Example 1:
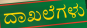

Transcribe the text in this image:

ದಾಖಲೆಗಳು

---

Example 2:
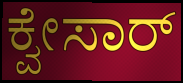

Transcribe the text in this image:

ಕ್ವೇಸಾರ್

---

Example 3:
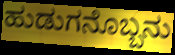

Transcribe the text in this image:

ಹುಡುಗನೊಬ್ಬನು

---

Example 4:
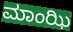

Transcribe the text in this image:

ಮಾಂಝಿ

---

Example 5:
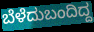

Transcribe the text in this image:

ಬೆಳೆದುಬಂದಿದ್ದ